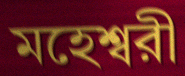
মহেশ্বরী